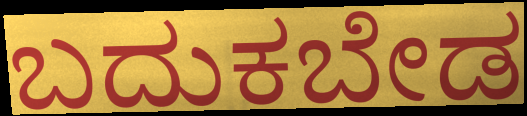
ಬದುಕಬೇಡ